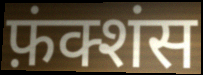
फ़ंक्शंस